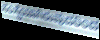
ಸಂಸ್ಥೆಯಾಗಿರುವುದರಿಂದ